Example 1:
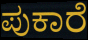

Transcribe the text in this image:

ಪುಕಾರೆ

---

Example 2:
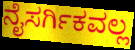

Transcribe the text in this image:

ನೈಸರ್ಗಿಕವಲ್ಲ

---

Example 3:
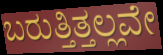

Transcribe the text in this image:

ಬರುತ್ತಿತ್ತಲ್ಲವೇ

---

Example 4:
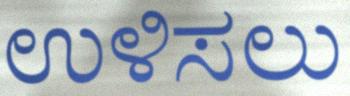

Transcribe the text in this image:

ಉಳಿಸಲು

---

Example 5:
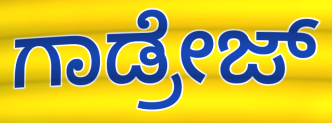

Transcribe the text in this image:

ಗಾಡ್ರೇಜ್